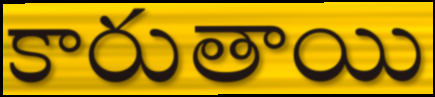
కారుతాయి